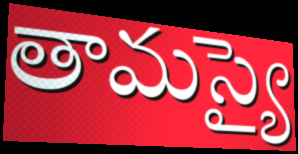
తామస్యై